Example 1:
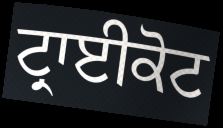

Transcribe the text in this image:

ਟ੍ਰਾਈਕੋਟ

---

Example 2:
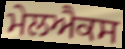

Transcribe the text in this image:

ਮੇਲਐਕਸ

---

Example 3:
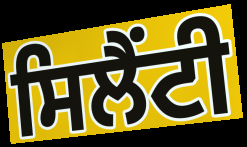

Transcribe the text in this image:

ਸਿਲੈਂਟੀ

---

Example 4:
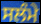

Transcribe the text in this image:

ਸਲੰਮੇ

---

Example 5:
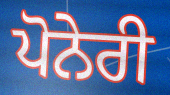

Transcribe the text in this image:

ਪੋਨੇਰੀ